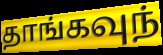
தாங்கவுந்